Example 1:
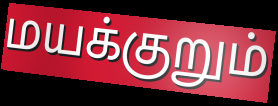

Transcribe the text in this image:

மயக்குறும்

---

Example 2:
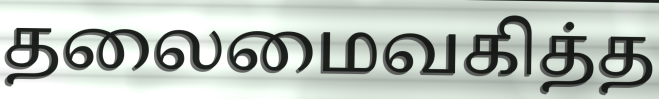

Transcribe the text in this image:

தலைமைவகித்த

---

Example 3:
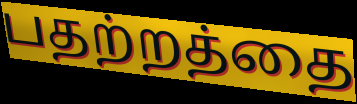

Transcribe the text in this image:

பதற்றத்தை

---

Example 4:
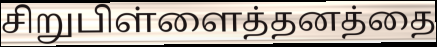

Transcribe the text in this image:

சிறுபிள்ளைத்தனத்தை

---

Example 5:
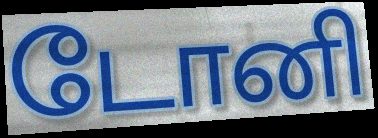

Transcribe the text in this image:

டோனி